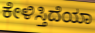
ಕೇಳಿಸ್ತಿದೆಯಾ